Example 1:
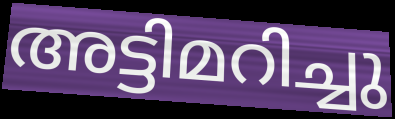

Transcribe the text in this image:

അട്ടിമറിച്ചു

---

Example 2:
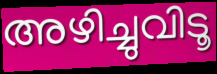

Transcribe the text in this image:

അഴിച്ചുവിടൂ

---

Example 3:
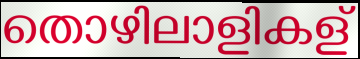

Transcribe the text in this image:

തൊഴിലാളികള്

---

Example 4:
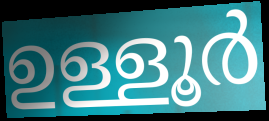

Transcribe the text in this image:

ഉള്ളൂർ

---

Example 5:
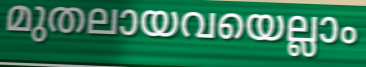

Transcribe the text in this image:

മുതലായവയെല്ലാം